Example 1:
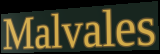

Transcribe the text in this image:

Malvales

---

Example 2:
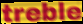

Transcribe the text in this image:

treble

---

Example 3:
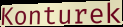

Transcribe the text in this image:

Konturek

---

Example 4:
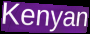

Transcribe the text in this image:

Kenyan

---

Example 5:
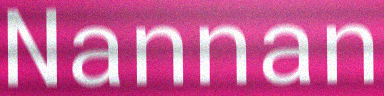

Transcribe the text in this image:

Nannan